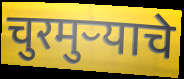
चुरमुऱ्याचे